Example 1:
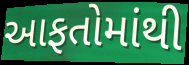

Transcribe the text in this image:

આફતોમાંથી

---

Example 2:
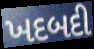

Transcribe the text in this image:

ખદબદી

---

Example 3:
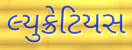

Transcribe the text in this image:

લ્યુક્રેટિયસ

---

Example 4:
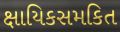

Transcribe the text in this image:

ક્ષાયિકસમકિત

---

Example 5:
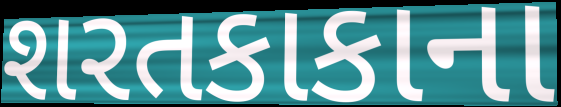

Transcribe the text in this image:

શરતકાકાના